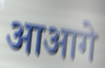
आआगे